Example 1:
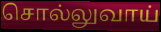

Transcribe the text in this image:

சொல்லுவாய்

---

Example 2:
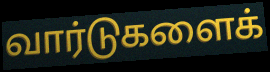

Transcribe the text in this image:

வார்டுகளைக்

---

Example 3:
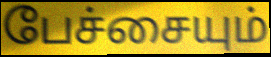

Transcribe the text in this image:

பேச்சையும்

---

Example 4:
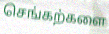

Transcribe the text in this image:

செங்கற்களை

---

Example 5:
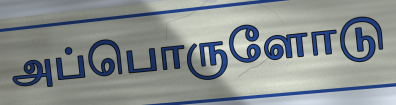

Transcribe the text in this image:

அப்பொருளோடு